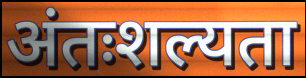
अंतःशल्यता